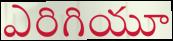
ఎరిగియూ